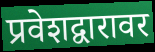
प्रवेशद्वारावर